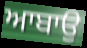
ਆਬਾਉ